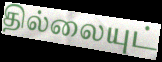
தில்லையுட்